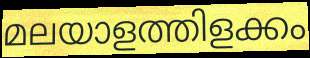
മലയാളത്തിളക്കം